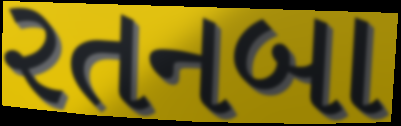
રતનબા